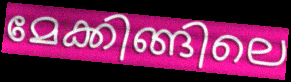
മേക്കിങ്ങിലെ